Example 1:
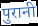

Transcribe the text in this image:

पुरानी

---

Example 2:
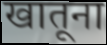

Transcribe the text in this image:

खातूना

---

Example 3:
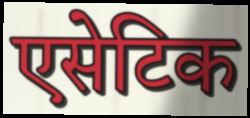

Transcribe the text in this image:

एसेटिक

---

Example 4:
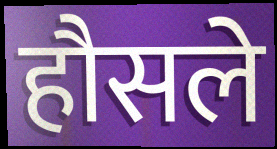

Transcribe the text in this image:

हौसले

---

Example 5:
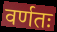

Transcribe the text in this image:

वर्णतः